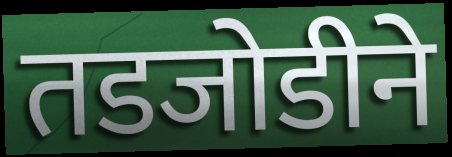
तडजोडीने